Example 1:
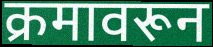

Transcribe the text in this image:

क्रमावरून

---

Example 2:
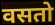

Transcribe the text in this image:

वसतो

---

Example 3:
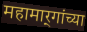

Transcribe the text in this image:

महामार्गांच्या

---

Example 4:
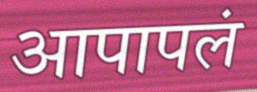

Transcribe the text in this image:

आपापलं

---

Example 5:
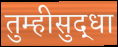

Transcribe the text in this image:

तुम्हीसुद्धा